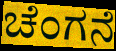
ಚೆಂಗನೆ